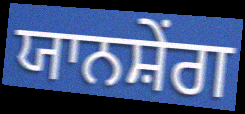
ਯਾਨਸ਼ੇਂਗ